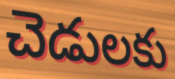
చెడులకు